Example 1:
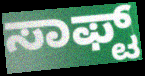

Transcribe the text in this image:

ಸಾಫ್ಟ್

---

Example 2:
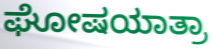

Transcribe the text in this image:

ಘೋಷಯಾತ್ರಾ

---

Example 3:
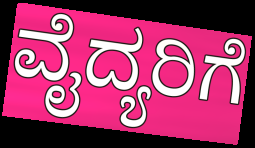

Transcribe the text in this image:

ವೈದ್ಯರಿಗೆ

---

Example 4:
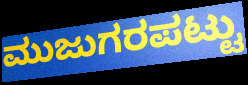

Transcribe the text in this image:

ಮುಜುಗರಪಟ್ಟು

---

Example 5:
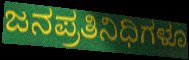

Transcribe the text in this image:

ಜನಪ್ರತಿನಿಧಿಗಳೂ